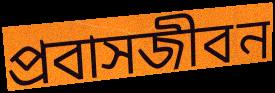
প্রবাসজীবন